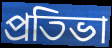
প্রতিভা